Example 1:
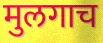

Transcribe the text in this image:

मुलगाच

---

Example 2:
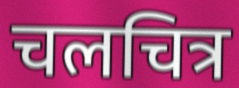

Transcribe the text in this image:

चलचित्र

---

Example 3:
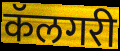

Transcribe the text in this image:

कॅलगरी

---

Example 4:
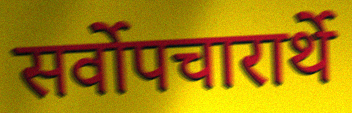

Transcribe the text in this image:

सर्वोपचारार्थे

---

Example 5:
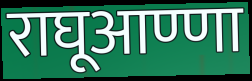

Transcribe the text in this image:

राघूआण्णा